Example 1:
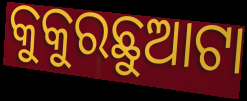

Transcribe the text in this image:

କୁକୁରଛୁଆଟା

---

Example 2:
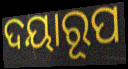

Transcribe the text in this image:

ଦୟାରୂପ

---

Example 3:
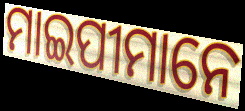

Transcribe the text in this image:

ମାଇପୀମାନେ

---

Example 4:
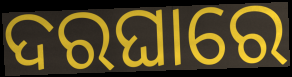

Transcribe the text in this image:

ଦରଘାରେ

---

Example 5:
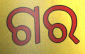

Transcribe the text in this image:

ଗର